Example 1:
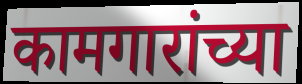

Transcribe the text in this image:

कामगारांच्या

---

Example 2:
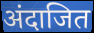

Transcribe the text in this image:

अंदाजित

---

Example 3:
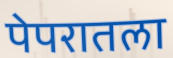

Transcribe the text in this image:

पेपरातला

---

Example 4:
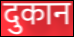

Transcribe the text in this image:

दुकान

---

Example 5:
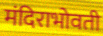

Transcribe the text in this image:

मंदिराभोवती